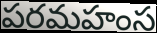
పరమహంస